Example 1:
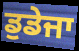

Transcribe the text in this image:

ਡੁਡੇਜਾ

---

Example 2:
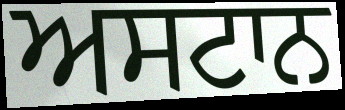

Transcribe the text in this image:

ਅਸਟਾਨ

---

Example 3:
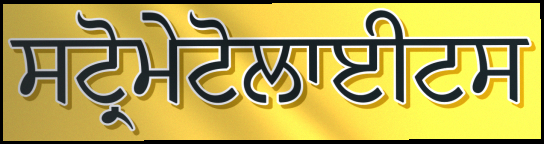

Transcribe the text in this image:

ਸਟ੍ਰੋਮੇਟੋਲਾਈਟਸ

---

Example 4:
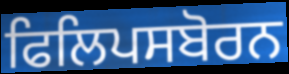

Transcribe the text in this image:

ਫਿਲਿਪਸਬੋਰਨ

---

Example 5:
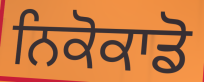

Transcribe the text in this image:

ਨਿਕੋਕਾਡੋ